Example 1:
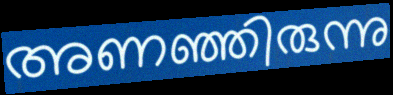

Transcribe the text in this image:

അണഞ്ഞിരുന്നു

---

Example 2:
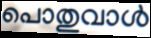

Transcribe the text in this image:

പൊതുവാൾ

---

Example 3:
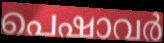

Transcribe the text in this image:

പെഷാവർ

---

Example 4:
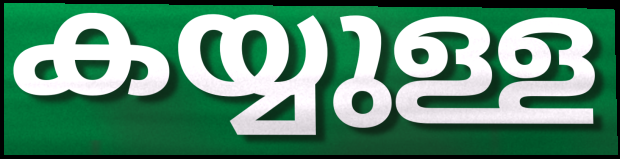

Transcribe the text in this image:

കയ്യുള്ള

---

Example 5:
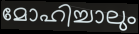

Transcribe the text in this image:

മോഹിച്ചാലും